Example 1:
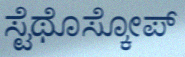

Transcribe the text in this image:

ಸ್ಟೆಥೊಸ್ಕೋಪ್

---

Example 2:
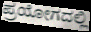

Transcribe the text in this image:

ಪ್ರಯೋಗದಲ್ಲಿ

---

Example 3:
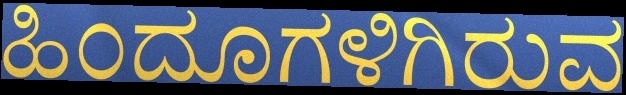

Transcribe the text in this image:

ಹಿಂದೂಗಳಿಗಿರುವ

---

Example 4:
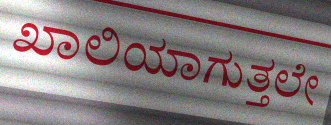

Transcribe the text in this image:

ಖಾಲಿಯಾಗುತ್ತಲೇ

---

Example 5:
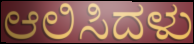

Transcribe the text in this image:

ಆಲಿಸಿದಳು